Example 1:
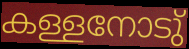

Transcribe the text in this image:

കള്ളനോടു്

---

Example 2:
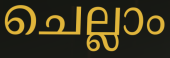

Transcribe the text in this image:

ചെല്ലാം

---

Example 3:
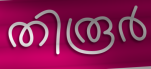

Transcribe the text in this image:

തിരൂർ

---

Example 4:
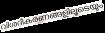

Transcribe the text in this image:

വിശദീകരണങ്ങളിലൂടെയും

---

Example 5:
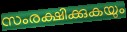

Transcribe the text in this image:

സംരക്ഷിക്കുകയും